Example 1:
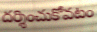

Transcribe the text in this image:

దర్శించుకోవటం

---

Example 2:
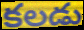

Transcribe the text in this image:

కలడు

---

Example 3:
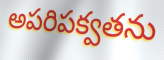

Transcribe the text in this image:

అపరిపక్వతను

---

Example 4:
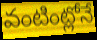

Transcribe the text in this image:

వంటింట్లోనే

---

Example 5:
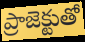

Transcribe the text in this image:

ప్రాజెక్టుతో